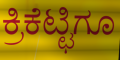
ಕ್ರಿಕೆಟ್ಟಿಗೂ